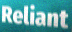
Reliant